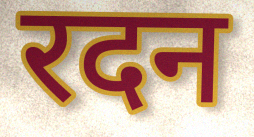
रदन